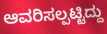
ಆವರಿಸಲ್ಪಟ್ಟಿದ್ದು